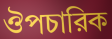
ঔপচারিক